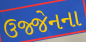
ઉજ્જેનના